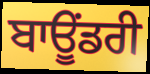
ਬਾਊਂਡਰੀ